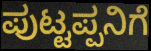
ಪುಟ್ಟಪ್ಪನಿಗೆ